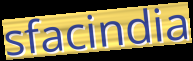
sfacindia